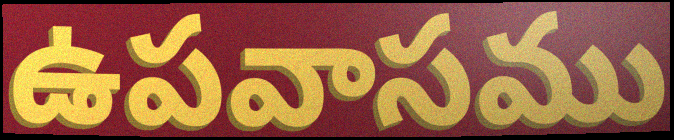
ఉపవాసము